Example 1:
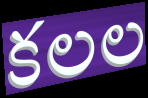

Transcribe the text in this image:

కలల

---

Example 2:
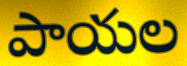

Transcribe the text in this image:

పాయల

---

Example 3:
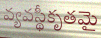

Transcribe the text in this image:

వ్యవస్థీకృతమై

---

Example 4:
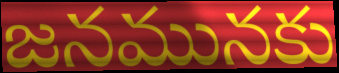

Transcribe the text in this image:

జనమునకు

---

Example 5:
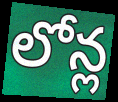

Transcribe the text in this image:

లోన్ల